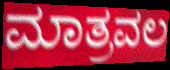
ಮಾತ್ರವಲ